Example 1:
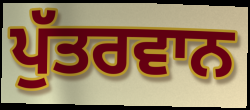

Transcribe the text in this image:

ਪੁੱਤਰਵਾਨ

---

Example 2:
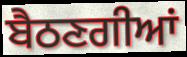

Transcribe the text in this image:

ਬੈਠਣਗੀਆਂ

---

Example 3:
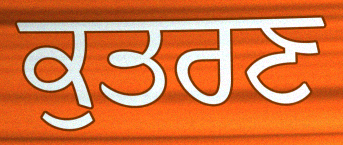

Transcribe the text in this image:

ਕੁਤਰਣ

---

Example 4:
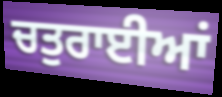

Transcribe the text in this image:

ਚਤੁਰਾਈਆਂ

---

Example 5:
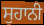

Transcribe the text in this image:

ਸੁਹਾਨੀ